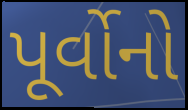
પૂર્વોનો